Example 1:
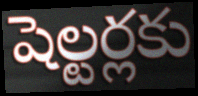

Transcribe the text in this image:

షెల్టర్లకు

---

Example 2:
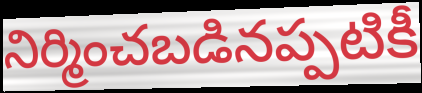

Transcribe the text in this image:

నిర్మించబడినప్పటికీ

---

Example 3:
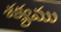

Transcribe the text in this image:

శక్యము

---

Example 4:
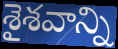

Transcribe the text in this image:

శైశవాన్ని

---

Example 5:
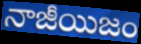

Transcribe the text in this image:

నాజీయిజం